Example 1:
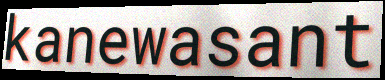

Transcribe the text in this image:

kanewasant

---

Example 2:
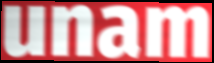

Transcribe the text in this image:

unam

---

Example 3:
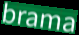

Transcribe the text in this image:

brama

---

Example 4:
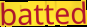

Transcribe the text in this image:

batted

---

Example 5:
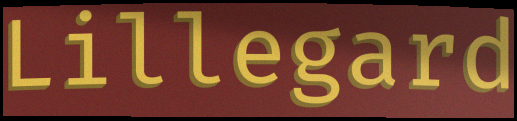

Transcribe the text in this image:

Lillegard